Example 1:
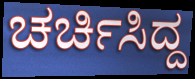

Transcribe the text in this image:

ಚರ್ಚಿಸಿದ್ದ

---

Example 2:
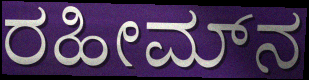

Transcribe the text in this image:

ರಹೀಮ್‌ನ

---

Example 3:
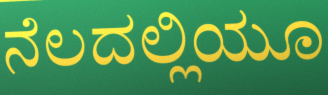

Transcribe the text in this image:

ನೆಲದಲ್ಲಿಯೂ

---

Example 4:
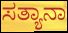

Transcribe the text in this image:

ಸತ್ಯಾನಾ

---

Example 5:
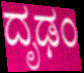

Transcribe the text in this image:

ದೃಢಂ